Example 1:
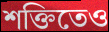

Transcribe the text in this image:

শক্তিতেও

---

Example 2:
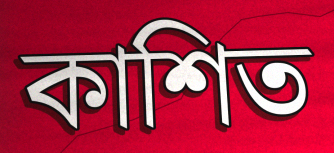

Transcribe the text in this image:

কাশিত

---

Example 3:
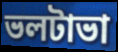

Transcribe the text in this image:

ভলটাভা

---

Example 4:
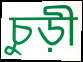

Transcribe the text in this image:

চুড়ী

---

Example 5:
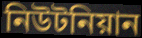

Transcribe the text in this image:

নিউটনিয়ান